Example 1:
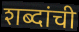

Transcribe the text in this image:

शब्दांची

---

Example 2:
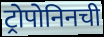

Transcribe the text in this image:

ट्रोपोनिनची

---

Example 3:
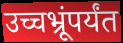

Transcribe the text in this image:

उच्चभ्रूंपर्यंत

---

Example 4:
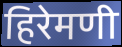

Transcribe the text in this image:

हिरेमणी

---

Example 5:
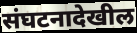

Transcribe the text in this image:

संघटनादेखील